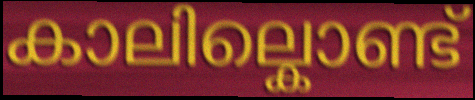
കാലില്കൊണ്ട്